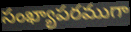
సంఖ్యాపరముగా